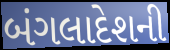
બંગલાદેશની